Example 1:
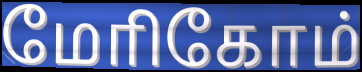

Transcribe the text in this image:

மேரிகோம்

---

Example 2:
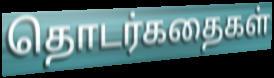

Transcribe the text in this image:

தொடர்கதைகள்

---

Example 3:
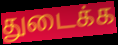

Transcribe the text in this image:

துடைக்க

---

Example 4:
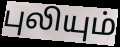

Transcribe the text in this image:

புலியும்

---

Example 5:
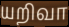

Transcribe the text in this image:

யறிவா